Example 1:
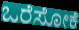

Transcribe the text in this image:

ಒರೆಸೋಕೆ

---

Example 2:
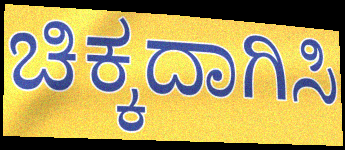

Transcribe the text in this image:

ಚಿಕ್ಕದಾಗಿಸಿ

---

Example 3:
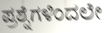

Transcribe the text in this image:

ಪ್ರಶ್ನೆಗಳಿಂದಲೇ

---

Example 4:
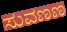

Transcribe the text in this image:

ಸುವಣಣ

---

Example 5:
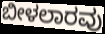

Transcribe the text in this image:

ಬೀಳಲಾರವು